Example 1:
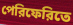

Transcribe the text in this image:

পেরিফেরিতে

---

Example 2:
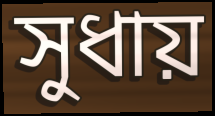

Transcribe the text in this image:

সুধায়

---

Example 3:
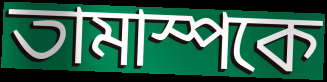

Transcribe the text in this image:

তামাস্পকে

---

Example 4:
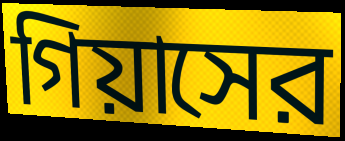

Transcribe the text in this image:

গিয়াসের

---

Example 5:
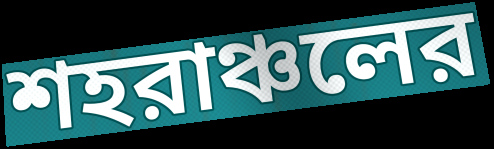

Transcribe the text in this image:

শহরাঞ্চলের